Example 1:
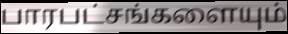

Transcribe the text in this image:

பாரபட்சங்களையும்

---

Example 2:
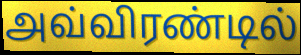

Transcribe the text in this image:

அவ்விரண்டில்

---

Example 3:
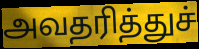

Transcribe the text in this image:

அவதரித்துச்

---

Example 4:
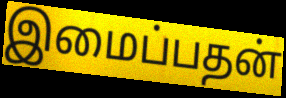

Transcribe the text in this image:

இமைப்பதன்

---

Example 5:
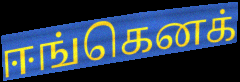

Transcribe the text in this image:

ஈங்கெனக்